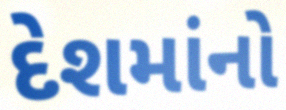
દેશમાંનો